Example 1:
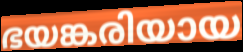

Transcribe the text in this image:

ഭയങ്കരിയായ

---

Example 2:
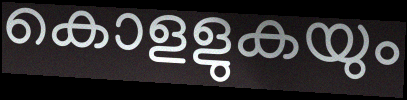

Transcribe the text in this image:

കൊളളുകയും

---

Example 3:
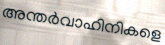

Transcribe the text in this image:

അന്തർവാഹിനികളെ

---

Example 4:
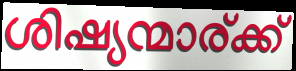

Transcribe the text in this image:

ശിഷ്യന്മാര്ക്ക്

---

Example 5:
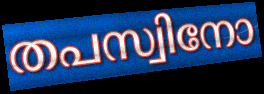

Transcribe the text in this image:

തപസ്വിനോ